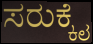
ಸರುಕ್ಕೈ